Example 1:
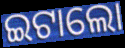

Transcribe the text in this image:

ଇଟାଲୋ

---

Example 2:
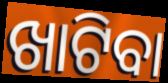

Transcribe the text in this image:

ଖାଟିବା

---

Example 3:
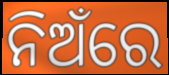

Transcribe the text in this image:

ନିଅଁରେ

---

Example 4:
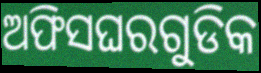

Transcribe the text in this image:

ଅଫିସଘରଗୁଡିକ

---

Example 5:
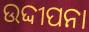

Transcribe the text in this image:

ଉଦ୍ଦୀପନା